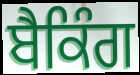
ਬੈਕਿੰਗ